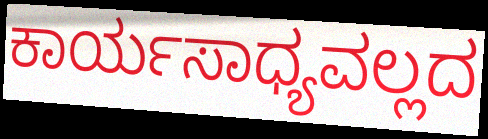
ಕಾರ್ಯಸಾಧ್ಯವಲ್ಲದ